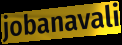
jobanavali